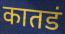
कातडं